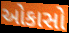
ઓકાસો